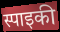
स्पाइकी